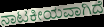
ನಾಟಕೀಯವಾಗಿದೆ